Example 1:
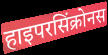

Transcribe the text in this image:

हाइपरसिंक्रोनस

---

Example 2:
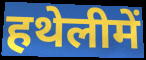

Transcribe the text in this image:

हथेलीमें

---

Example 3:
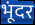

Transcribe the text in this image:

भूंदर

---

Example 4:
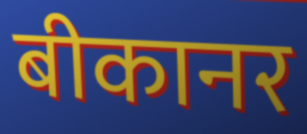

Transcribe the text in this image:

बीकानर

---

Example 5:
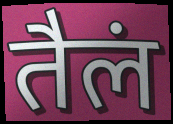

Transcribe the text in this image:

तैलं